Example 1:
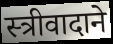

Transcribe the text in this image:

स्त्रीवादाने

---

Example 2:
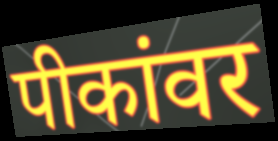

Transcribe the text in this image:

पीकांवर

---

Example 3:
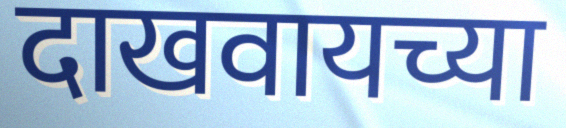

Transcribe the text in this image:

दाखवायच्या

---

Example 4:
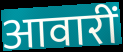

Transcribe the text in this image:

आवारीं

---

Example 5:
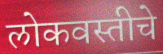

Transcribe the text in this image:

लोकवस्तीचे